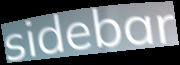
sidebar